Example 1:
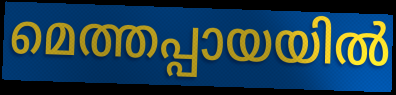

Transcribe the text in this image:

മെത്തപ്പായയിൽ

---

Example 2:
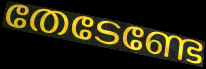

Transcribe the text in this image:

തേടേണ്ടേ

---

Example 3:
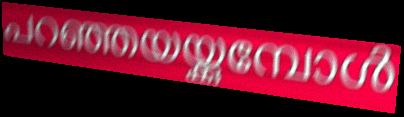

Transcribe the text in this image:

പറഞ്ഞയയ്ക്കുമ്പോൾ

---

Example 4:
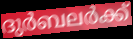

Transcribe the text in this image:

ദുർബലർക്ക്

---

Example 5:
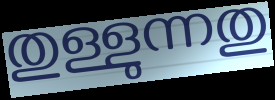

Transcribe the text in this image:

തുള്ളുന്നതു